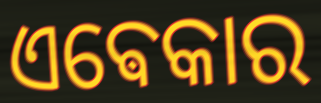
ଏଵେକାର